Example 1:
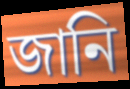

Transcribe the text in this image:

জানি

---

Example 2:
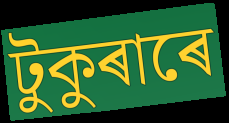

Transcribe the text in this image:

টুকুৰাৰে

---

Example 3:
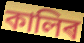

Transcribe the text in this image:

কালিৰ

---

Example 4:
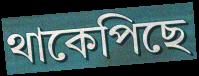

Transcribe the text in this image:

থাকেপিছে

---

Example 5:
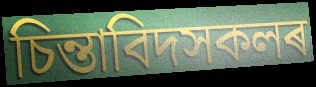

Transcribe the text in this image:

চিন্তাবিদসকলৰ